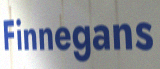
Finnegans